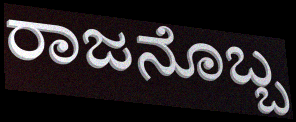
ರಾಜನೊಬ್ಬ